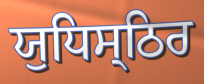
ਯੁਧਿਸ੍ਠਿਰ